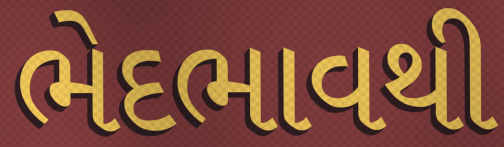
ભેદભાવથી